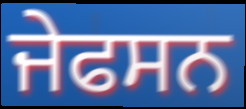
ਜੇਫਸਨ